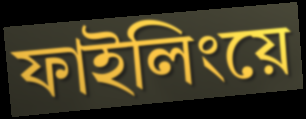
ফাইলিংয়ে